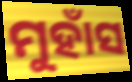
ମୁହାଁସ